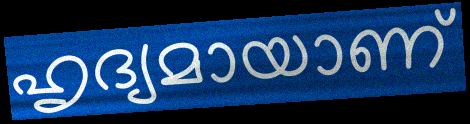
ഹൃദ്യമായാണ്